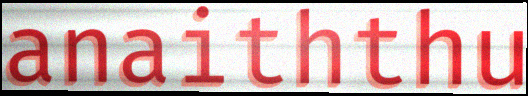
anaiththu